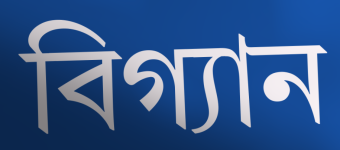
বিগ্যান